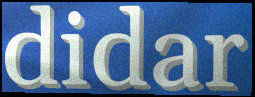
didar